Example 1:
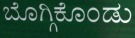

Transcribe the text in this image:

ಬೊಗ್ಗಿಕೊಂಡು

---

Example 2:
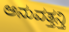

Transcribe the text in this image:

ಅನುವತ್ತನ್ತಿ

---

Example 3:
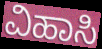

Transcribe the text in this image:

ವಿಹಾಸಿ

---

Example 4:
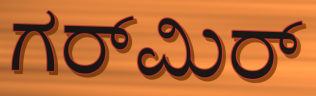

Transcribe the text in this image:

ಗರ್‌ಮಿರ್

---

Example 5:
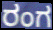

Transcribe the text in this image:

ರಂಗ